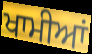
ਖਾਮੀਆਂ